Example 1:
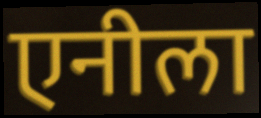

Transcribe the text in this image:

एनीला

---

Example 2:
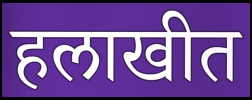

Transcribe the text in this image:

हलाखीत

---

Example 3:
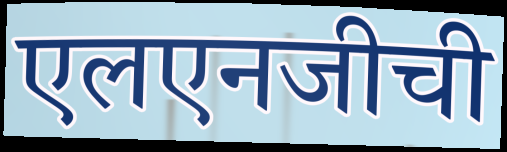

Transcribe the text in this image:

एलएनजीची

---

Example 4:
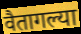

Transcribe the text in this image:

वैतागल्या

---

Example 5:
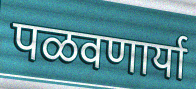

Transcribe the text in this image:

पळवणार्या